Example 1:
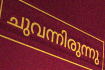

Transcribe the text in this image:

ചുവന്നിരുന്നു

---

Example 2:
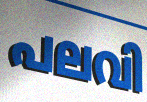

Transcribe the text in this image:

പലവി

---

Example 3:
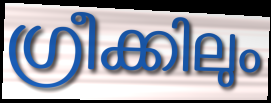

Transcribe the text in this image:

ഗ്രീക്കിലും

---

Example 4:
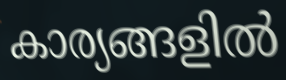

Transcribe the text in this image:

കാര്യങ്ങളിൽ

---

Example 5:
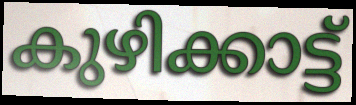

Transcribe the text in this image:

കുഴിക്കാട്ട്